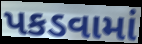
પકડવામાં